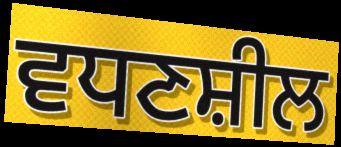
ਵਧਣਸ਼ੀਲ